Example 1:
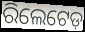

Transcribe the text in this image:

ରିଲେଟେଡ଼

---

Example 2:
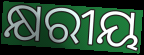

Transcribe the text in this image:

କ୍ଷରୀୟ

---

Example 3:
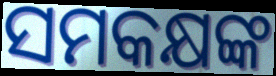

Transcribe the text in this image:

ସମକକ୍ଷଙ୍କ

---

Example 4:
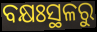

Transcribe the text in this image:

ବକ୍ଷଃସ୍ଥଳରୁ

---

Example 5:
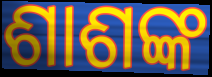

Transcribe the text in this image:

ଶାଶଙ୍କ